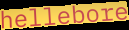
hellebore